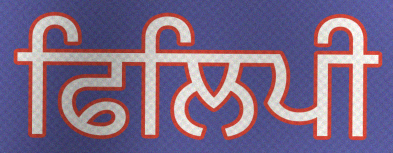
ਫਿਲਿਪੀ